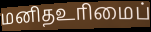
மனிதஉரிமைப்